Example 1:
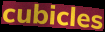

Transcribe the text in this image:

cubicles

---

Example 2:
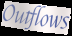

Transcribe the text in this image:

Outflows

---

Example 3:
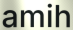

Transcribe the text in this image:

amih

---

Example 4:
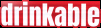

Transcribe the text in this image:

drinkable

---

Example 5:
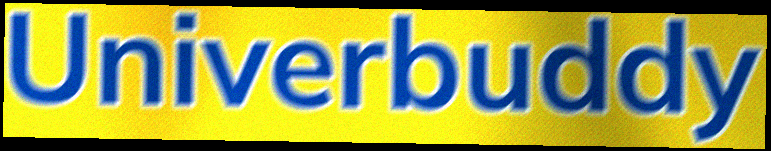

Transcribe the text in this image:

Univerbuddy